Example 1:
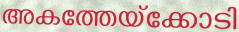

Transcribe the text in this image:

അകത്തേയ്‌ക്കോടി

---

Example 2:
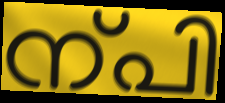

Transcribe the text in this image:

ന്പി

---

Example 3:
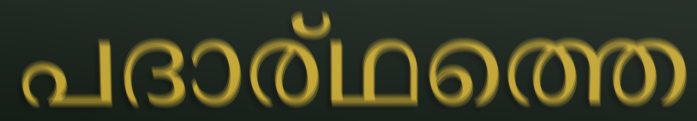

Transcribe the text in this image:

പദാര്ഥത്തെ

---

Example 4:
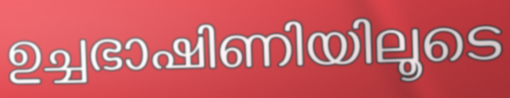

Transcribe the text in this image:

ഉച്ചഭാഷിണിയിലൂടെ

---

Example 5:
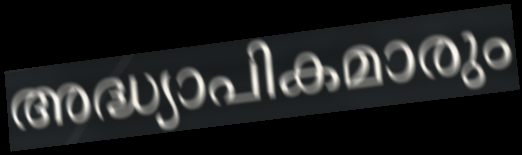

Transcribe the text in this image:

അദ്ധ്യാപികമാരും